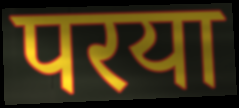
परया